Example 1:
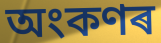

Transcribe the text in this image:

অংকণৰ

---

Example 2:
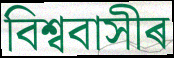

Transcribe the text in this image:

বিশ্ববাসীৰ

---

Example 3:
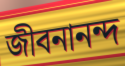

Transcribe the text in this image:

জীবনানন্দ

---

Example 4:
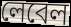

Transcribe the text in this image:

লেবেল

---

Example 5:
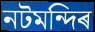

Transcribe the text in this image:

নটমন্দিৰ